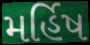
મર્હિષ